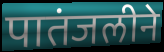
पातंजलीने